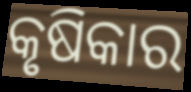
କୃଷିକାର